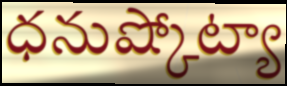
ధనుష్కోట్యా